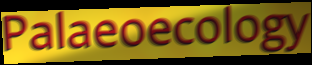
Palaeoecology